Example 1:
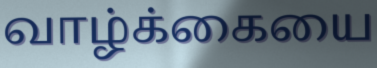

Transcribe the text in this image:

வாழ்க்கையை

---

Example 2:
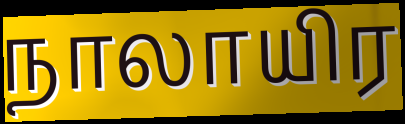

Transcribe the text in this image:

நாலாயிர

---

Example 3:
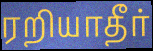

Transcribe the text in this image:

ரறியாதீர்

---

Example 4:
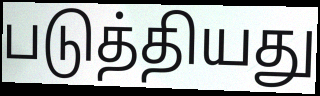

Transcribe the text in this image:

படுத்தியது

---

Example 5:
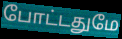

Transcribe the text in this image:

போட்டதுமே